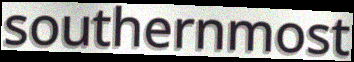
southernmost